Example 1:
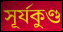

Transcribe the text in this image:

সূর্যকুণ্ড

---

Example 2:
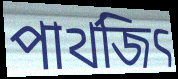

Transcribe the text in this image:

পার্থজিৎ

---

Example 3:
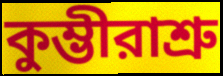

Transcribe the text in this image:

কুম্ভীরাশ্রু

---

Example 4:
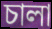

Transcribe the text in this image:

চালা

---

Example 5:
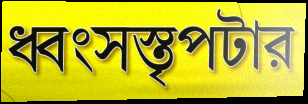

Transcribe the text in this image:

ধ্বংসস্তৃপটার